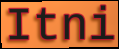
Itni